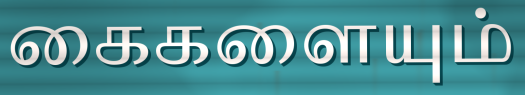
கைகளையும்